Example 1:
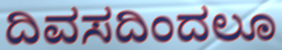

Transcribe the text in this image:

ದಿವಸದಿಂದಲೂ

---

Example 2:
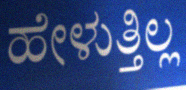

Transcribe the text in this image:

ಹೇಳುತ್ತಿಲ್ಲ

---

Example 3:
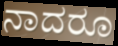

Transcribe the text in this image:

ನಾದರೂ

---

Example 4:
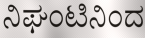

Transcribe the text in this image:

ನಿಘಂಟಿನಿಂದ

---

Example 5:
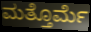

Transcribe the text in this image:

ಮತ್ತೊರ್ಮೆ